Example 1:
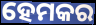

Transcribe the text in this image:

ହେମକର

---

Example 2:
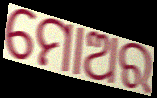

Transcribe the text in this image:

ମୋଅର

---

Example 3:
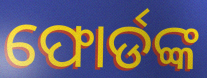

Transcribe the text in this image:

ଫୋର୍ଡଙ୍କ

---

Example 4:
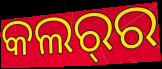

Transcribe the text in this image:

କଲର୍‌ର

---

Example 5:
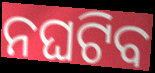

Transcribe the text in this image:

ନଘଟିବ